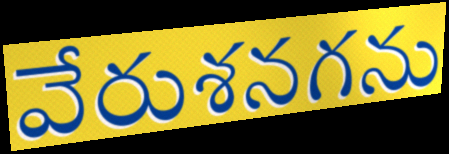
వేరుశనగను